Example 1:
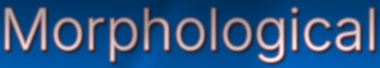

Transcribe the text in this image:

Morphological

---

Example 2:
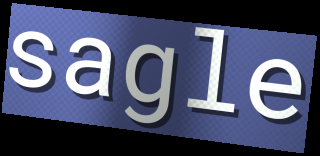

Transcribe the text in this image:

sagle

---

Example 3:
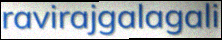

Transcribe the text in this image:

ravirajgalagali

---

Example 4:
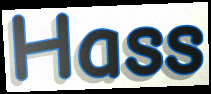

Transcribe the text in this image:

Hass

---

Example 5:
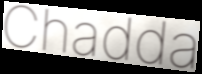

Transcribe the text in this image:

Chadda